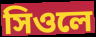
সিওলে